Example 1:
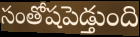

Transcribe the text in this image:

సంతోషపెడ్తుంది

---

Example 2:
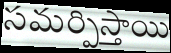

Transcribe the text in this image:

సమర్పిస్తాయి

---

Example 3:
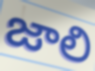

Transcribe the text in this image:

జాలి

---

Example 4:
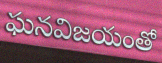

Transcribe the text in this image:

ఘనవిజయంతో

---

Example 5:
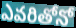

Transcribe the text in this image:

ఎవరితోనో